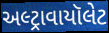
અલ્ટ્રાવાયૉલેટ